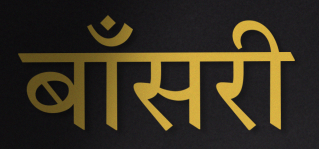
बाँसरी